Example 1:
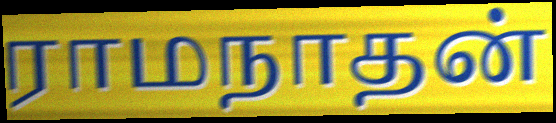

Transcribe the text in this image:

ராமநாதன்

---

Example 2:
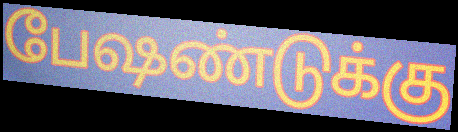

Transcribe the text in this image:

பேஷண்டுக்கு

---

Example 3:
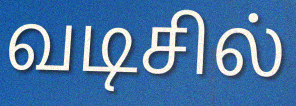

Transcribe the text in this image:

வடிசில்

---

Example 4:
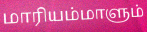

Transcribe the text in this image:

மாரியம்மாளும்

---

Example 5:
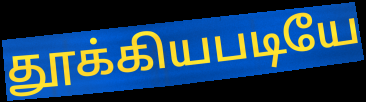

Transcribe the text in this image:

தூக்கியபடியே